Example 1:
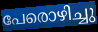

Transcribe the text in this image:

പേരൊഴിച്ചു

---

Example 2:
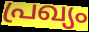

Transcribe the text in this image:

പ്രഖ്യം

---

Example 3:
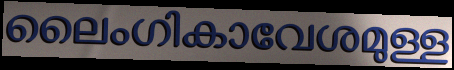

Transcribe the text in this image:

ലൈംഗികാവേശമുള്ള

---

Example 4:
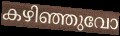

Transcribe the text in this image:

കഴിഞ്ഞുവോ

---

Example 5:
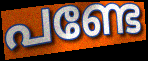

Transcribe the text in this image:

പണ്ടേ